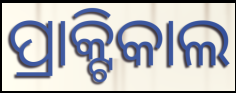
ପ୍ରାକ୍ଟିକାଲ